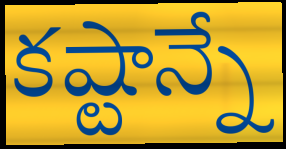
కష్టాన్నే